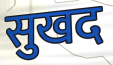
सुखद